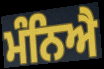
ਮੰਨਿਐ